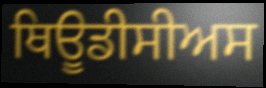
ਥਿਊਡੀਸੀਅਸ